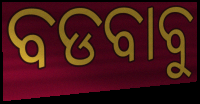
ବଡବାବୁ